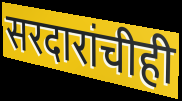
सरदारांचीही